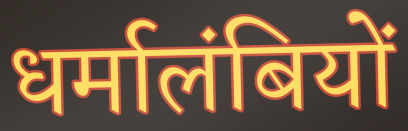
धर्मालंबियों